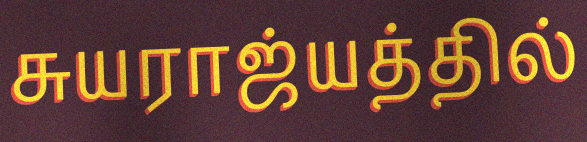
சுயராஜ்யத்தில்